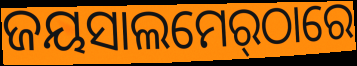
ଜୟସାଲମେର୍‌ଠାରେ